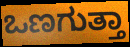
ಒಣಗುತ್ತಾ